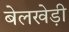
बेलखेड़ी